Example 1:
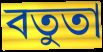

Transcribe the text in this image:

বতুতা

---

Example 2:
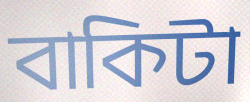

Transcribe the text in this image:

বাকিটা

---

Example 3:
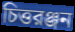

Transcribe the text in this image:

চিত্তরঞ্জন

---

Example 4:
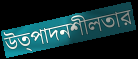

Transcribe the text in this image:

উত্পাদনশীলতার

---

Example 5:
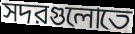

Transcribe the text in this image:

সদরগুলোতে